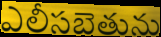
ఎలీసబెతును